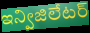
ఇన్విజిలేటర్